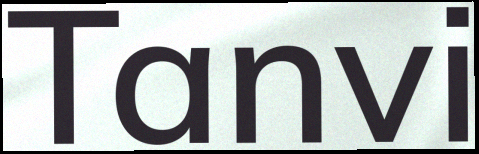
Tanvi